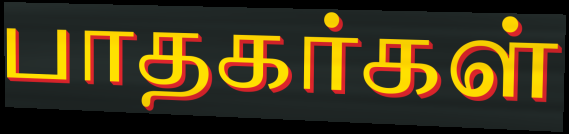
பாதகர்கள்